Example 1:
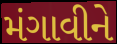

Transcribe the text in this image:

મંગાવીને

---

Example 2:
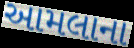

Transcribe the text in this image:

આમલાના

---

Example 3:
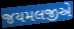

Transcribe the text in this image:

જયમલજીએ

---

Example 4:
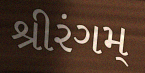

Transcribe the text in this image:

શ્રીરંગમ્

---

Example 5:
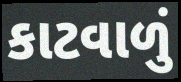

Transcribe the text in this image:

કાટવાળું